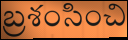
బ్రశంసించి